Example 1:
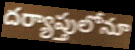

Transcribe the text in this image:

దర్యాప్తులోనూ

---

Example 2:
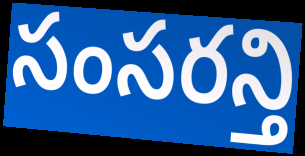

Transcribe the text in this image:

సంసరన్తి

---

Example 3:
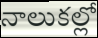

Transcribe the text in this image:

నాలుకల్లో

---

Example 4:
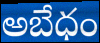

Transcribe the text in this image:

అబేధం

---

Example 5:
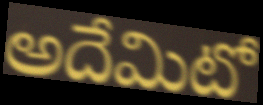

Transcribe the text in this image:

అదేమిటో